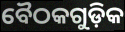
ବୈଠକଗୁଡ଼ିକ